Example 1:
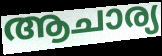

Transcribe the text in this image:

ആചാര്യ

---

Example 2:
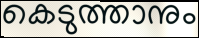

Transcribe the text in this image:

കെടുത്താനും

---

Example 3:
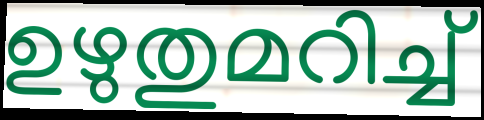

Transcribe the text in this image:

ഉഴുതുമറിച്ച്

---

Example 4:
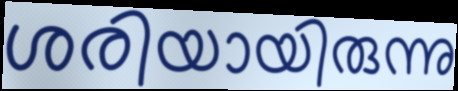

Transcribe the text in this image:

ശരിയായിരുന്നു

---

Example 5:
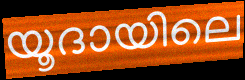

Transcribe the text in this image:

യൂദായിലെ